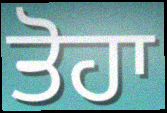
ਤੋਹਾ